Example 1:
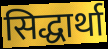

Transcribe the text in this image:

सिद्धार्था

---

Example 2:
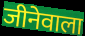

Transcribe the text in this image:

जीनेवाला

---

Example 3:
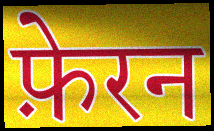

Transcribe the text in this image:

फ़ेरन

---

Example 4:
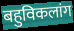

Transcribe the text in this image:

बहुविकलांग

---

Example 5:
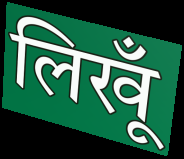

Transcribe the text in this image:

लिखूँ